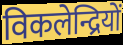
विकलेन्द्रियों